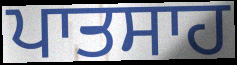
ਪਾਤਸਾਹ